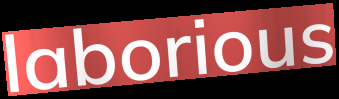
laborious